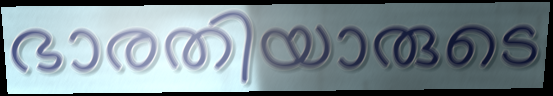
ഭാരതിയാരുടെ